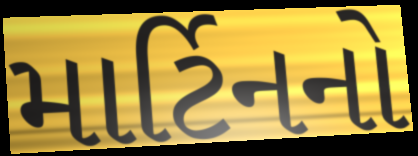
માર્ટિનનો